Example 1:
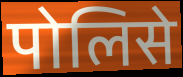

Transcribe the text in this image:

पोलिसे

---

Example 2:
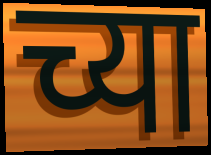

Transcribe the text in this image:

च्या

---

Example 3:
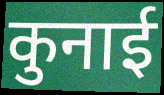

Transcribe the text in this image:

कुनाई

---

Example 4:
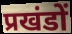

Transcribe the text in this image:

प्रखंडों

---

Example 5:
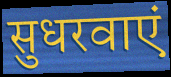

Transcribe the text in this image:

सुधरवाएं